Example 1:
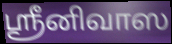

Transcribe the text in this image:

ஸ்ரீனிவாஸ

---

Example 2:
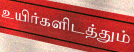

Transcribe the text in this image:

உயிர்களிடத்தும்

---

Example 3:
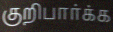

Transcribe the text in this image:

குறிபார்க்க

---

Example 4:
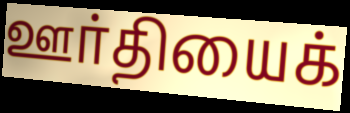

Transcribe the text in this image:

ஊர்தியைக்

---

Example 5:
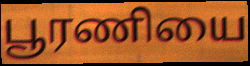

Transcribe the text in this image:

பூரணியை